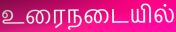
உரைநடையில்